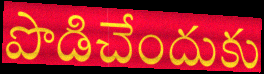
పొడిచేందుకు